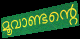
മൂവാണ്ടന്റെ